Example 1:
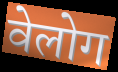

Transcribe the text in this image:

वेलोग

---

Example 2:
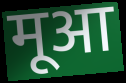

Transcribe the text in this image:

मूआ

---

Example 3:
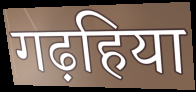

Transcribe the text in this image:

गढ़हिया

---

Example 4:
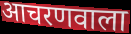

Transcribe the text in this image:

आचरणवाला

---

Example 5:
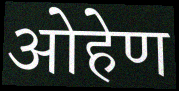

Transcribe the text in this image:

ओहेण